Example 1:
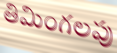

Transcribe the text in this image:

తిమింగలపు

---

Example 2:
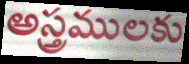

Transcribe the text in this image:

అస్త్రములకు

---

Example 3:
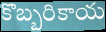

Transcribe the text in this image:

కొబ్బరికాయ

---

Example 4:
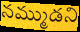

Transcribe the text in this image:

నమ్ముడని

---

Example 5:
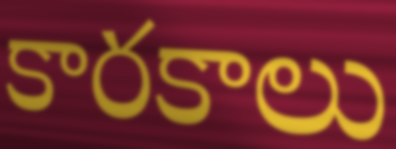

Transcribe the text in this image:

కారకాలు